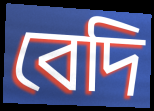
বেদি